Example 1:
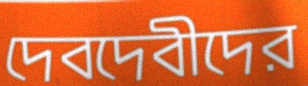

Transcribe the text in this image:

দেবদেবীদের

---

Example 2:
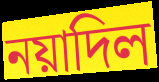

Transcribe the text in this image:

নয়াদিল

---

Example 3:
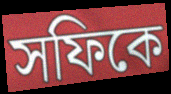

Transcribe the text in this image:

সফিকে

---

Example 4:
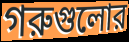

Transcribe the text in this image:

গরুগুলোর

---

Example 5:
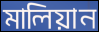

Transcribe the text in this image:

মালিয়ান